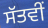
ਸੱਤਵੀਂ